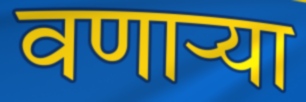
वणाऱ्या